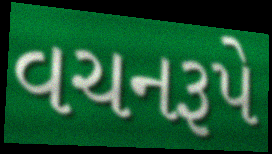
વચનરૂપે